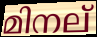
മിനല്